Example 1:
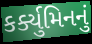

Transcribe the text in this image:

કર્ક્યુમિનનું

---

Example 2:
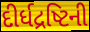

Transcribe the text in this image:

દીર્ધદ્રષ્ટિની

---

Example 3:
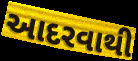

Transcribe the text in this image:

આદરવાથી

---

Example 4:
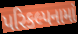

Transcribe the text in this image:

પરિકલ્પનામાં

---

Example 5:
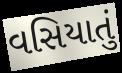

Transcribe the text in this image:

વસિયાતું